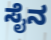
ಸೈನ